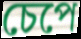
চেপে